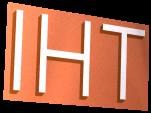
IHT